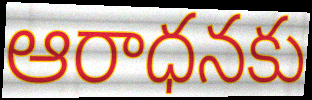
ఆరాధనకు